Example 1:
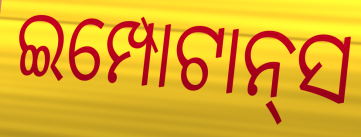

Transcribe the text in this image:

ଇମ୍ପୋଟାନ୍‌ସ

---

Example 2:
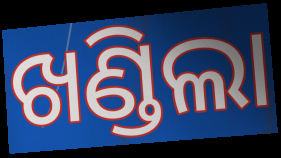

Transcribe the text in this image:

ଖଣ୍ଡିଲା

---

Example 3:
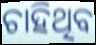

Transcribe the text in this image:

ଚାହିଥିବ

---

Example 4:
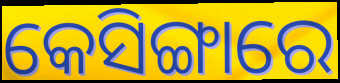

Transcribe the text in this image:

କେସିଙ୍ଗାରେ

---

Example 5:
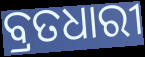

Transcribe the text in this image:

ବ୍ରତଧାରୀ